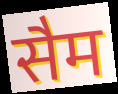
सैम